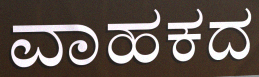
ವಾಹಕದ